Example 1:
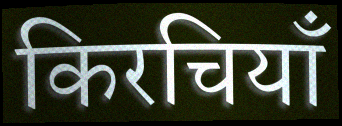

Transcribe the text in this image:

किरचियाँ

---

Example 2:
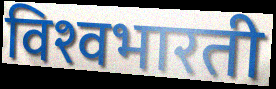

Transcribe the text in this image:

विश्वभारती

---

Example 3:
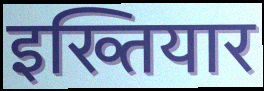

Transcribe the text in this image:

इख्तियार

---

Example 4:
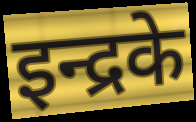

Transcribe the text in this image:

इन्द्रके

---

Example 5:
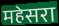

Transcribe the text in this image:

महेसरा